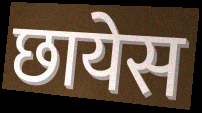
छायेस